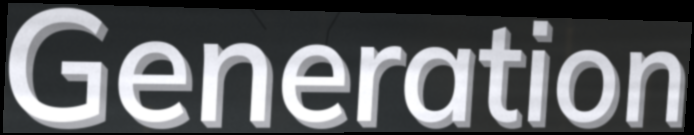
Generation